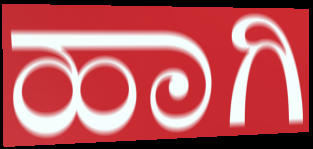
ಹಾಗಿ